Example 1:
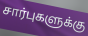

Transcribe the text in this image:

சார்புகளுக்கு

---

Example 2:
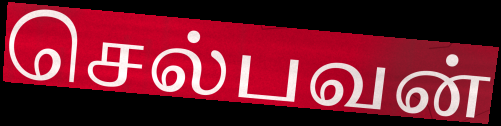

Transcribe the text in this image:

செல்பவன்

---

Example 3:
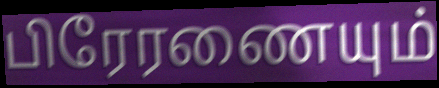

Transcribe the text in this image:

பிரேரணையும்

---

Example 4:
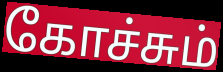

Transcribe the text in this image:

கோச்சும்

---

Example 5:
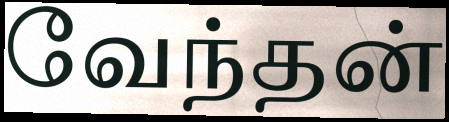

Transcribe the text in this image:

வேந்தன்